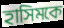
হাসিমকে